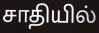
சாதியில்